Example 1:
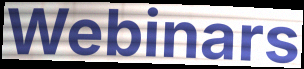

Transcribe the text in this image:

Webinars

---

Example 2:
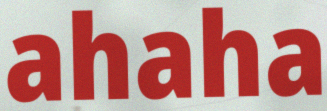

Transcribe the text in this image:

ahaha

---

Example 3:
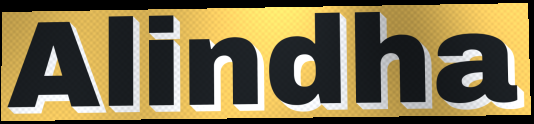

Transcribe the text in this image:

Alindha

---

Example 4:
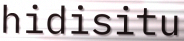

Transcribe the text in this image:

hidisitu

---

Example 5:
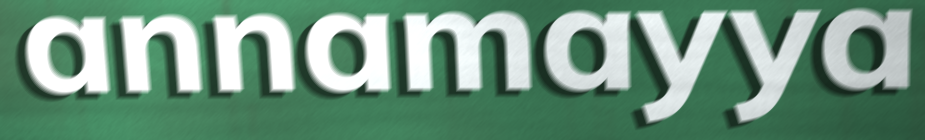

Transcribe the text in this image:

annamayya